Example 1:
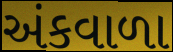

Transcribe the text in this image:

અંકવાળા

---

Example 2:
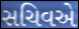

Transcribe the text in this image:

સચિવએ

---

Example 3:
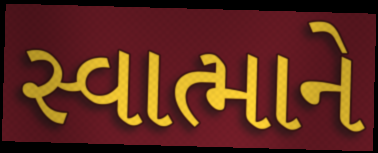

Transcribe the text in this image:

સ્વાત્માને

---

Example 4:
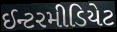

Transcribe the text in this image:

ઈન્ટરમીડિયેટ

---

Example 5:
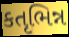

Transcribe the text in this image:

કતૃભિન્ન